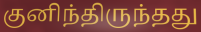
குனிந்திருந்தது